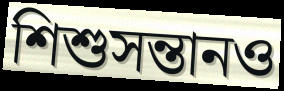
শিশুসন্তানও